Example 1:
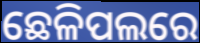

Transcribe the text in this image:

ଛେଳିପଲରେ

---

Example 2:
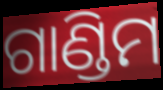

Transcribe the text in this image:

ଗାଣ୍ଡିମ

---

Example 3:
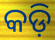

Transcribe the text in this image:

କଡ଼ି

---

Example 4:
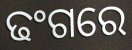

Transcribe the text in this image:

ଢଂଗରେ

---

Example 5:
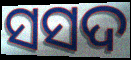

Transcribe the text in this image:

ସସଦ